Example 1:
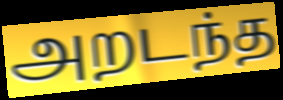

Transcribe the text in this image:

அறடந்த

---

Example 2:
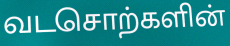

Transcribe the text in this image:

வடசொற்களின்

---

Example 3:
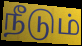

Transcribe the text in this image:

நீடும்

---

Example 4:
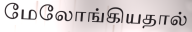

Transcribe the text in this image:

மேலோங்கியதால்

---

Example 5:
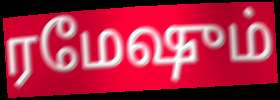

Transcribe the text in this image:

ரமேஷும்